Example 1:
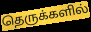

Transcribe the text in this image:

தெருக்களில்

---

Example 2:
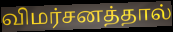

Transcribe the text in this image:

விமர்சனத்தால்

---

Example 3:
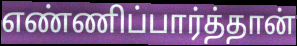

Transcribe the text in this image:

எண்ணிப்பார்த்தான்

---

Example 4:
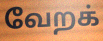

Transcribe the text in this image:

வேறக்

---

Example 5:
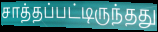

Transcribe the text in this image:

சாத்தப்பட்டிருந்தது